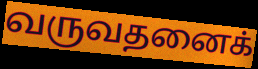
வருவதனைக்